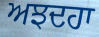
ਅਝਦਹਾ